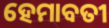
ହେମାବତୀ